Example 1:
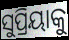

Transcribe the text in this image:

ସୁପ୍ରିୟାକୁ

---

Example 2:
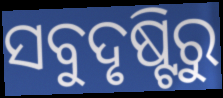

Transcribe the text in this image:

ସବୁଦୃଷ୍ଟିରୁ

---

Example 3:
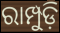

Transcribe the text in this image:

ରାମ୍ପୁଡ଼ି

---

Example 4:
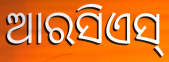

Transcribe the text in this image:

ଆରସିଏସ୍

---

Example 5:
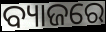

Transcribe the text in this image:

ବ୍ୟାଜରେ